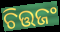
ଚିତ୍ତଜଂ